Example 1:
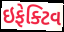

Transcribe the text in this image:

ઇફેક્ટિવ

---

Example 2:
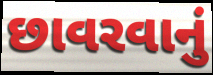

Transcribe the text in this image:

છાવરવાનું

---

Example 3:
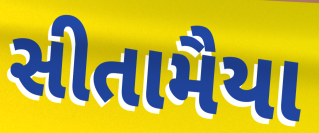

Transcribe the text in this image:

સીતામૈયા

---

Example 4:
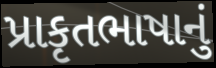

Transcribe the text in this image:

પ્રાકૃતભાષાનું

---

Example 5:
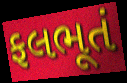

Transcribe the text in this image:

ફલભૂતં